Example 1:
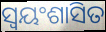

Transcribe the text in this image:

ସ୍ୱୟଂଶାସିତ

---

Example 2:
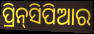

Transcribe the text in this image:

ପ୍ରିନ୍‌ସିପିଆର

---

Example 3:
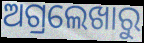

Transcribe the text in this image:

ଅଗ୍ରଲେଖାରୁ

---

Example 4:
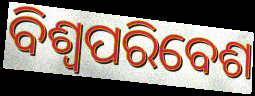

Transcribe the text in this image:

ବିଶ୍ୱପରିବେଶ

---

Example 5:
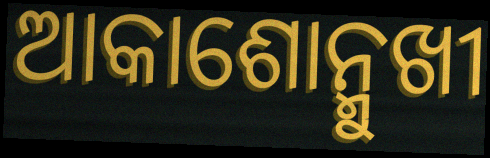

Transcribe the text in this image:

ଆକାଶୋନ୍ମୁଖୀ